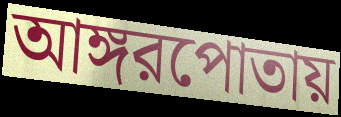
আঙ্গরপোতায়